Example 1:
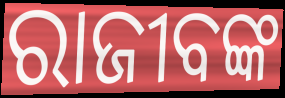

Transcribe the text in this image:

ରାଜୀବଙ୍କ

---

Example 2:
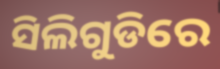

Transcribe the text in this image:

ସିଲିଗୁଡିରେ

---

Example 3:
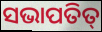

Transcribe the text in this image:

ସଭାପତିତ୍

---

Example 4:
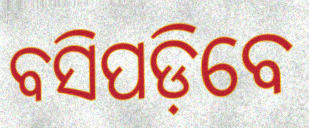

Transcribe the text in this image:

ବସିପଡ଼ିବେ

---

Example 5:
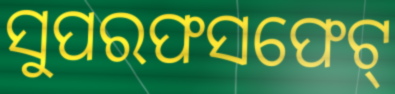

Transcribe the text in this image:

ସୁପରଫସଫେଟ୍